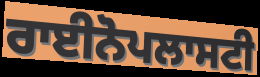
ਰਾਈਨੋਪਲਾਸਟੀ